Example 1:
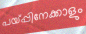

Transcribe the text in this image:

പയ്പ്പിനേക്കാളും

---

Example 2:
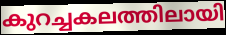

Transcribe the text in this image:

കുറച്ചകലത്തിലായി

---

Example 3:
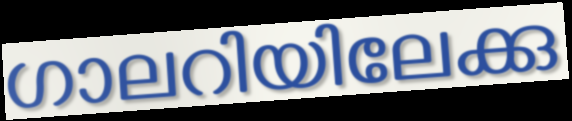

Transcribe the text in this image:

ഗാലറിയിലേക്കു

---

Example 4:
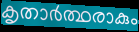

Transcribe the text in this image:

കൃതാർത്ഥരാകും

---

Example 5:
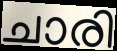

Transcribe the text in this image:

ചാരി